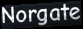
Norgate